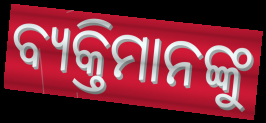
ବ୍ଯକ୍ତିମାନଙ୍କୁ